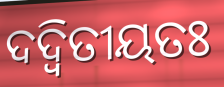
ଦଦ୍ୱିତୀୟତଃ